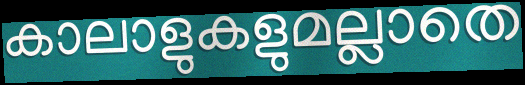
കാലാളുകളുമല്ലാതെ